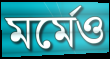
মর্মেও